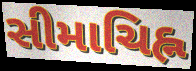
સીમાચિહ્ન